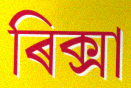
ৰিক্সা